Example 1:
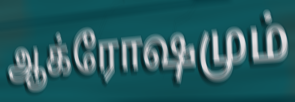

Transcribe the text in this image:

ஆக்ரோஷமும்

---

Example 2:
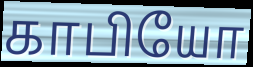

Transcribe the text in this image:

காபியோ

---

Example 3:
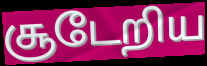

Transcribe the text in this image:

சூடேறிய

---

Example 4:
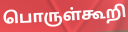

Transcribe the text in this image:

பொருள்கூறி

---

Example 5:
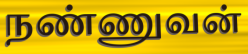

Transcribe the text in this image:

நண்ணுவன்